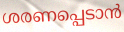
ശരണപ്പെടാൻ